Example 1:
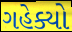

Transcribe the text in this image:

ગહેક્યો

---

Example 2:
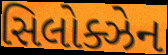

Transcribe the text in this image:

સિલોક્ઝેન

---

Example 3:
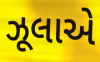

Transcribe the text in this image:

ઝૂલાએ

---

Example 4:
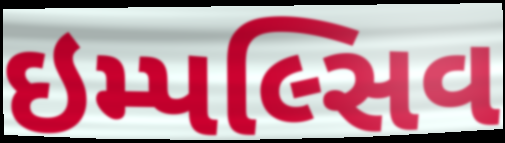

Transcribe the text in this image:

ઇમ્પલ્સિવ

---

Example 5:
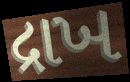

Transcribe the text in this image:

દ્રાખ